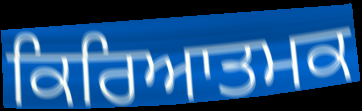
ਕਿਰਿਆਤਮਕ